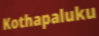
Kothapaluku